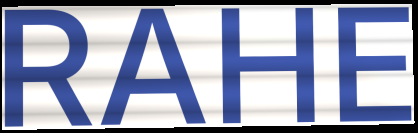
RAHE